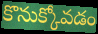
కొనుక్కోవడం